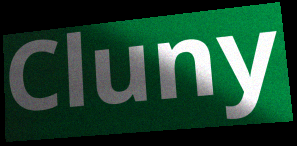
Cluny